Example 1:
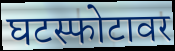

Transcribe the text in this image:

घटस्फोटावर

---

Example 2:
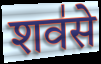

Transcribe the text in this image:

शव॑से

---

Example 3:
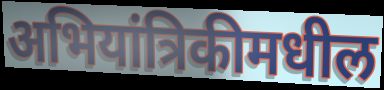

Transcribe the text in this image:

अभियांत्रिकीमधील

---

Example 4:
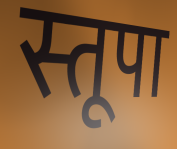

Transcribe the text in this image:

स्तूपा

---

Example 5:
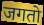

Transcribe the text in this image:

जगतो